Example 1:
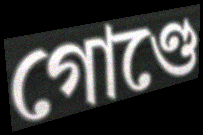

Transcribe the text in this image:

গোণ্ডে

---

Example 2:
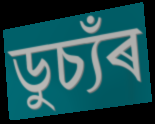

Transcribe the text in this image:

ডুচ্যঁৰ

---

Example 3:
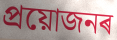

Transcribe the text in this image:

প্ৰয়োজনৰ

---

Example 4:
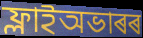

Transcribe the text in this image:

ফ্লাইঅভাৰৰ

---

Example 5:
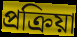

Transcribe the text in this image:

প্ৰক্ৰিয়া